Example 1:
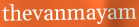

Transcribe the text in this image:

thevanmayam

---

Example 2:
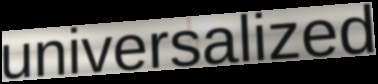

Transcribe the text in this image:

universalized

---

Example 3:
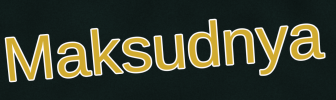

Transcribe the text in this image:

Maksudnya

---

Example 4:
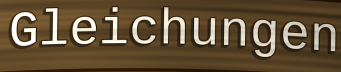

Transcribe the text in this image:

Gleichungen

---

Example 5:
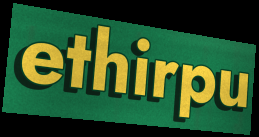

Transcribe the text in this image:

ethirpu